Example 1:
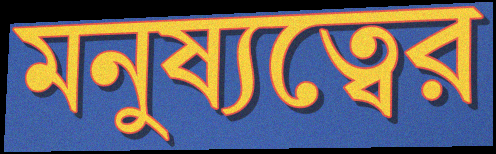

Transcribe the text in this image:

মনুষ্যত্বের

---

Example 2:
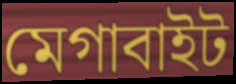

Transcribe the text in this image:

মেগাবাইট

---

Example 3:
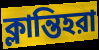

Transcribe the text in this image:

ক্লান্তিহরা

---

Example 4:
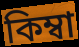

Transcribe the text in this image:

কিম্বা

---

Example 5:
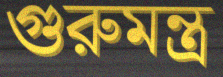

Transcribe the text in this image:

গুরুমন্ত্র